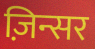
ज़िन्सर